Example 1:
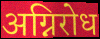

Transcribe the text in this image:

अग्निरोध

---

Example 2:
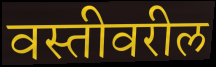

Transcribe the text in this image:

वस्तीवरील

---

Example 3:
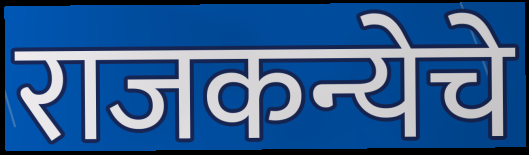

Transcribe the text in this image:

राजकन्येचे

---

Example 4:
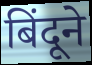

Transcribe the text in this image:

बिंदूने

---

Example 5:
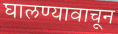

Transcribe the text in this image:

घालण्यावाचून